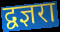
द्वज्ञरा